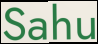
Sahu